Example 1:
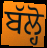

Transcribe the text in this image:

ਬੱਲ੍ਹੋ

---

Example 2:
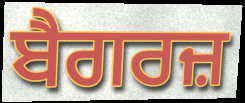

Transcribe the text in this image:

ਬੈਗਰਜ਼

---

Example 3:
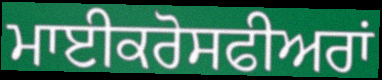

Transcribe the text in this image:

ਮਾਈਕਰੋਸਫੀਅਰਾਂ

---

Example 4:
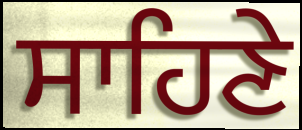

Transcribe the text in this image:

ਸਾਹਿਣੇ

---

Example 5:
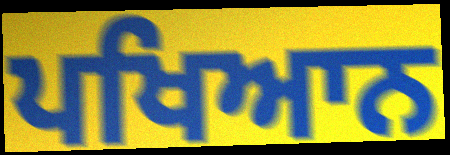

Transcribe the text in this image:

ਪਖਿਆਨ